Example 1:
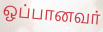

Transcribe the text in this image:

ஒப்பானவர்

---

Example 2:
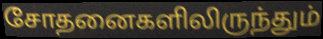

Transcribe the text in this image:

சோதனைகளிலிருந்தும்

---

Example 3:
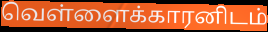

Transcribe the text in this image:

வெள்ளைக்காரனிடம்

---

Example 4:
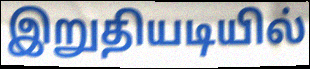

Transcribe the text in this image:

இறுதியடியில்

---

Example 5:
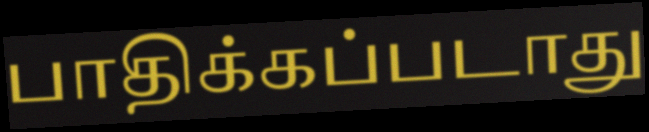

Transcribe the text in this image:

பாதிக்கப்படாது